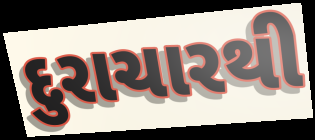
દુરાચારથી